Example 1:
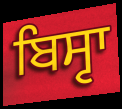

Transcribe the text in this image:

ਬਿਸ੍ਟਾ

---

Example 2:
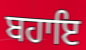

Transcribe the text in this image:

ਬਹਾਇ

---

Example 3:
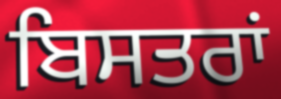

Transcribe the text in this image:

ਬਿਸਤਰਾਂ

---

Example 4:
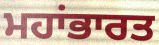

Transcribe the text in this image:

ਮਹਾਂਭਾਰਤ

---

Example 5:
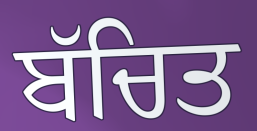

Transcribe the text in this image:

ਬੱਚਿਤ